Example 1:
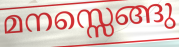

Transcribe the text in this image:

മനസ്സെങ്ങു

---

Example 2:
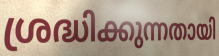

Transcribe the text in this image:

ശ്രദ്ധിക്കുന്നതായി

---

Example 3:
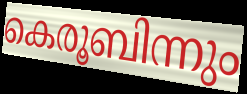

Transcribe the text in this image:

കെരൂബിന്നും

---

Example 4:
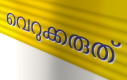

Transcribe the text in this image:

വെറുക്കരുത്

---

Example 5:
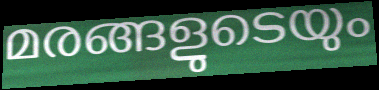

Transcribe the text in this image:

മരങ്ങളുടെയും